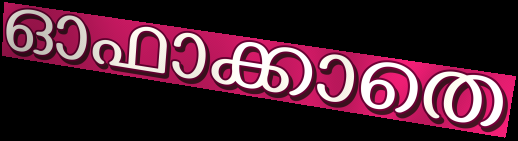
ഓഫാക്കാതെ